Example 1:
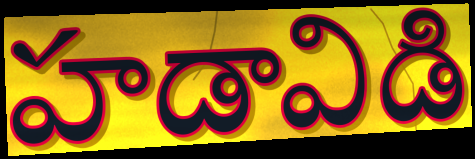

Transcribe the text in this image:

హడావిడి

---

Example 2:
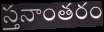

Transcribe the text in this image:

స్తనాంతరం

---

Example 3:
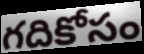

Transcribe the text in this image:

గదికోసం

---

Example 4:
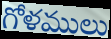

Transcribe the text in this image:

గోళములు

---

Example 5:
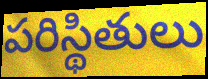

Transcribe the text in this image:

పరిస్థితులు